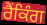
ਰੈੰਕਿੰਗ